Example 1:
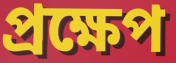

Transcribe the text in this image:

প্ৰক্ষেপ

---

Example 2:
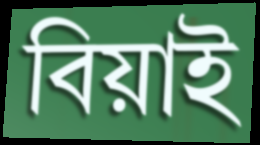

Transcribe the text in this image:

বিয়াই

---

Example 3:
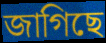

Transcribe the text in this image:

জাগিছে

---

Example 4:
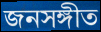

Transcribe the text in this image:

জনসঙ্গীত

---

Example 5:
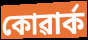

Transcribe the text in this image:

কোৱাৰ্ক